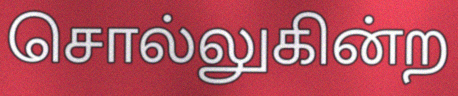
சொல்லுகின்ற